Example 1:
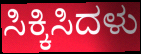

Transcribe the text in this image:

ಸಿಕ್ಕಿಸಿದಳು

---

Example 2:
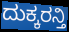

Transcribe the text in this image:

ದುಕ್ಕರನ್ತಿ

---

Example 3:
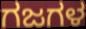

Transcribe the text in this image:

ಗಜಗಳ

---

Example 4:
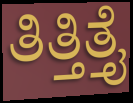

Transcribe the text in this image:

ತಿತ್ತಿತ್ತೈ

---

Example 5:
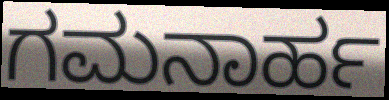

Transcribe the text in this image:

ಗಮನಾರ್ಹ